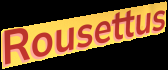
Rousettus